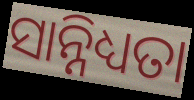
ସାନ୍ନିଧ୍ୟତା